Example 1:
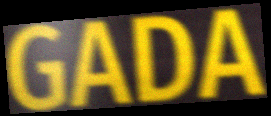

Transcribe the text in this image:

GADA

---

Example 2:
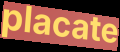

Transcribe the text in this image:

placate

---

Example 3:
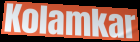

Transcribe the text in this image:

Kolamkar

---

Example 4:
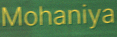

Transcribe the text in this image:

Mohaniya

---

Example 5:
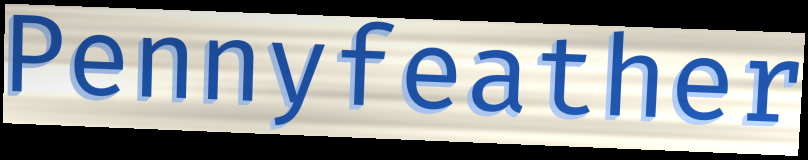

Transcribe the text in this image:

Pennyfeather